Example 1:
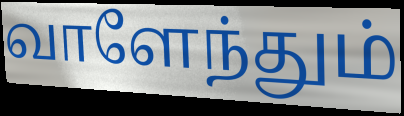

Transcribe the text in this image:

வாளேந்தும்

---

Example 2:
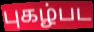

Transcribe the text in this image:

புகழ்பட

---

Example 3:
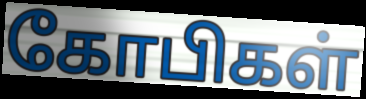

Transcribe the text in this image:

கோபிகள்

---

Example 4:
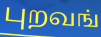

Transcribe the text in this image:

புறவங்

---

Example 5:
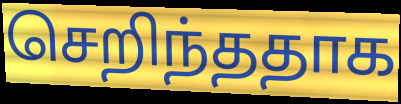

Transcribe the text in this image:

செறிந்ததாக